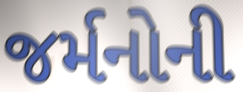
જર્મનોની